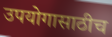
उपयोगासाठीच